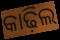
କାଢ଼ିଲ